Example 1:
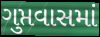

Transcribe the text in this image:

ગુપ્તવાસમાં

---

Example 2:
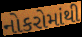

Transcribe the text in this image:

નોકરોમાંથી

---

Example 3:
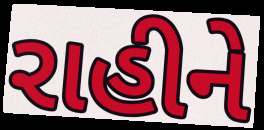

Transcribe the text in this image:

રાહીને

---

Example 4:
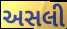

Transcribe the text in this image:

અસલી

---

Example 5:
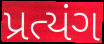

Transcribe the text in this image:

પ્રત્યંગ